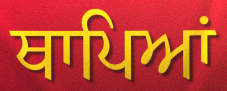
ਥਾਪਿਆਂ